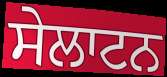
ਸੇਲਾਟਨ